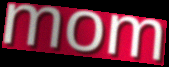
mom